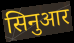
सिनुआर